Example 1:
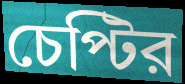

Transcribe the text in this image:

চেপ্টির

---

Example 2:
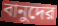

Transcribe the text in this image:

বানুদের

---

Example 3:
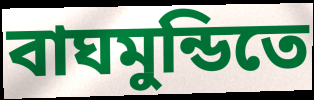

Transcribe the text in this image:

বাঘমুন্ডিতে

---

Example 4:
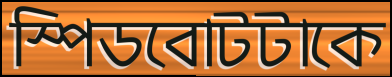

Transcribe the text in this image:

স্পিডবোটটাকে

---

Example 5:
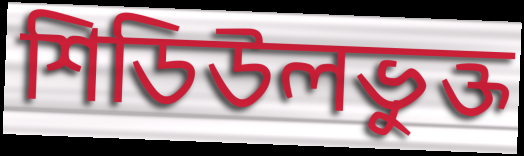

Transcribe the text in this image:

শিডিউলভুক্ত